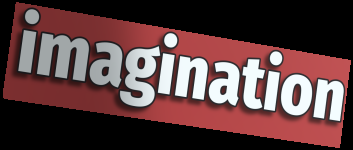
imagination